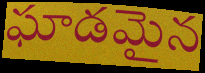
ఘాడమైన